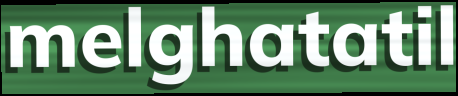
melghatatil